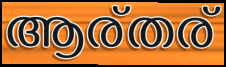
ആര്തര്